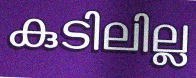
കുടിലില്ല